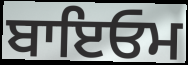
ਬਾਇਓਮ